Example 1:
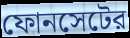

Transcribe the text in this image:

ফোনসেটের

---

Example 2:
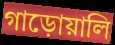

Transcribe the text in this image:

গাড়োয়ালি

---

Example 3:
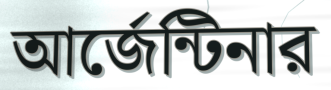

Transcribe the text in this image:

আর্জেন্টিনার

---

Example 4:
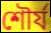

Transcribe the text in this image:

শৌর্য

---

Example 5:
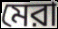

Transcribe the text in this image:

মেরা